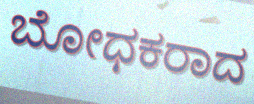
ಬೋಧಕರಾದ